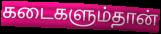
கடைகளும்தான்